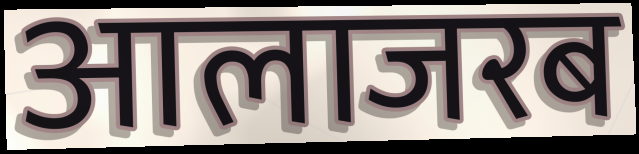
आलाजरब